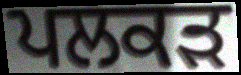
ਪਲਕੜ